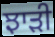
ਝਾੜੀ